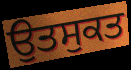
ਉਤਸੁਕਤ